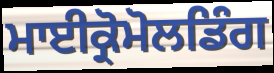
ਮਾਈਕ੍ਰੋਮੋਲਡਿੰਗ